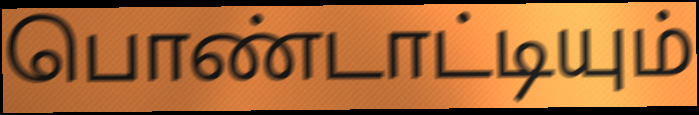
பொண்டாட்டியும்